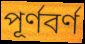
পূর্ণবর্ণ